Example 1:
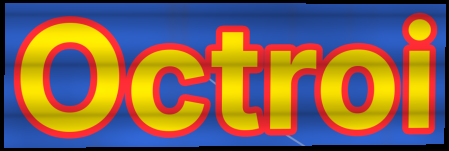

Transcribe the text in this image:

Octroi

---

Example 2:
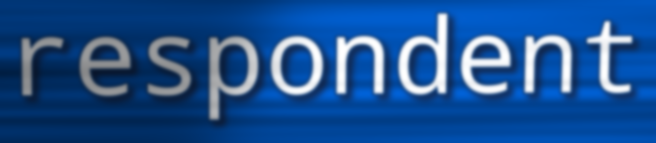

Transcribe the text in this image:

respondent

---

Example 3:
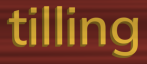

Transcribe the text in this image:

tilling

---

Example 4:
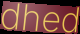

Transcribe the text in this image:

dhed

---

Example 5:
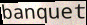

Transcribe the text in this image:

banquet